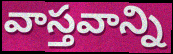
వాస్తవాన్ని